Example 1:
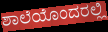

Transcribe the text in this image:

ಶಾಲೆಯೊಂದರಲ್ಲಿ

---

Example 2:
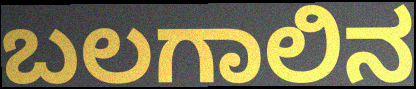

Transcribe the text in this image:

ಬಲಗಾಲಿನ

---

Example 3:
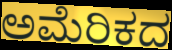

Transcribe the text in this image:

ಅಮೆರಿಕದ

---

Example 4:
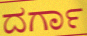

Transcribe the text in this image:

ದರ್ಗಾ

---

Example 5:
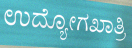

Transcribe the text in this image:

ಉದ್ಯೋಗಖಾತ್ರಿ